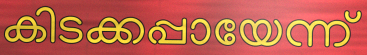
കിടക്കപ്പായേന്ന്